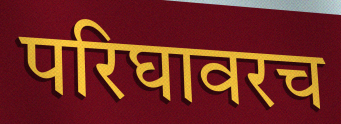
परिघावरच